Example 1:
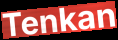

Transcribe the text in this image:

Tenkan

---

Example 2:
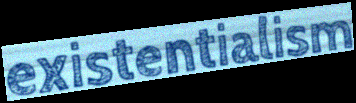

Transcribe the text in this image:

existentialism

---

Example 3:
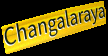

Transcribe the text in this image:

Changalaraya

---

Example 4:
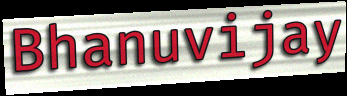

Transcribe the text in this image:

Bhanuvijay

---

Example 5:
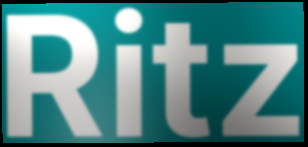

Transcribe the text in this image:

Ritz